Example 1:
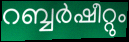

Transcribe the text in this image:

റബ്ബർഷീറ്റും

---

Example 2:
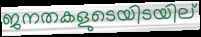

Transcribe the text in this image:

ജനതകളുടെയിടയില്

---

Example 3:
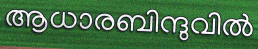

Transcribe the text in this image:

ആധാരബിന്ദുവിൽ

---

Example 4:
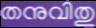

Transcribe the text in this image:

തനുവിതു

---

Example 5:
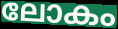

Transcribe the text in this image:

ലോകം